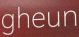
gheun